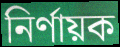
নিৰ্ণায়ক